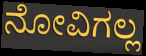
ನೋವಿಗಲ್ಲ